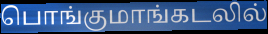
பொங்குமாங்கடலில்